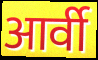
आर्वी